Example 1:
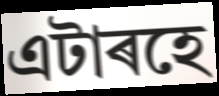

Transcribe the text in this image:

এটাৰহে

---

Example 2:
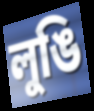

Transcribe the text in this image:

লুঙি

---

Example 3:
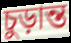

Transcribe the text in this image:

চুড়ান্ত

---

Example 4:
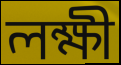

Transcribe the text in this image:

লক্ষী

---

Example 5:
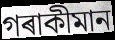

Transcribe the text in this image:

গৰাকীমান